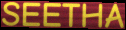
SEETHA